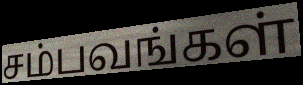
சம்பவங்கள்